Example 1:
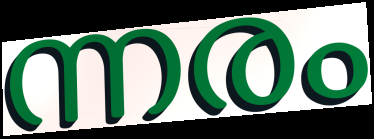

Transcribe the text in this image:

ന്നരം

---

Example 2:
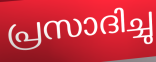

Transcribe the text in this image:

പ്രസാദിച്ചു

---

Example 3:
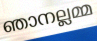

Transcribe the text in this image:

ഞാനല്ലമ്മ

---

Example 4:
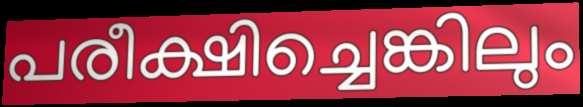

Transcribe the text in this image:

പരീക്ഷിച്ചെങ്കിലും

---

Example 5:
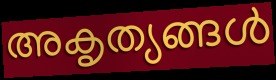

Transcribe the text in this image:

അകൃത്യങ്ങൾ